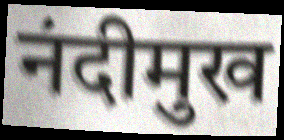
नंदीमुख